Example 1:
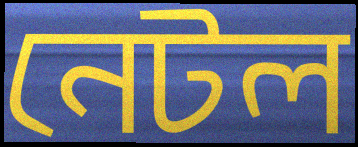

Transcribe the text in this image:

নেটল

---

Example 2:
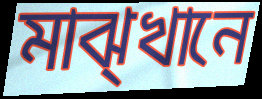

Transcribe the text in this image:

মাঝ্খানে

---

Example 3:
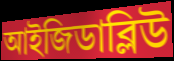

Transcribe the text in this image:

আইজিডাব্লিউ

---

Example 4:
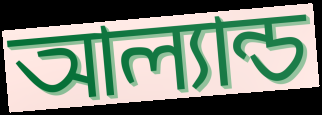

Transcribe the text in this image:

আল্যান্ড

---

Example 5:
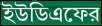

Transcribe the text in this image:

ইউডিএফের